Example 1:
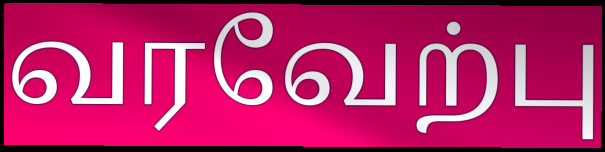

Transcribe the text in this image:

வரவேற்பு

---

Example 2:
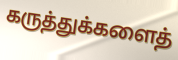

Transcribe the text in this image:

கருத்துக்களைத்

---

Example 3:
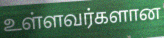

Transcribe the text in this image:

உள்ளவர்களான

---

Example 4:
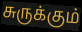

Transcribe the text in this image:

சுருக்கும்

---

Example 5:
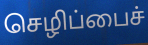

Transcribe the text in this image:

செழிப்பைச்